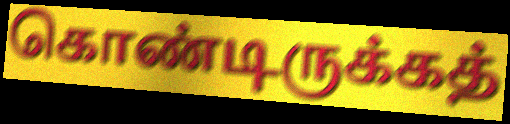
கொண்டிருக்கத்